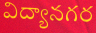
విద్యానగర